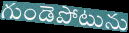
గుండెపోటును